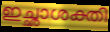
ഇച്ഛാശക്തി